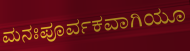
ಮನಃಪೂರ್ವಕವಾಗಿಯೂ